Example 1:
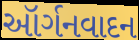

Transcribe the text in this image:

ઑર્ગનવાદન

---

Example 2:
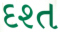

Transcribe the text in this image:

દશ્ત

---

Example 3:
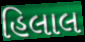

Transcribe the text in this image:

હિલાલ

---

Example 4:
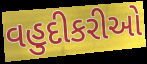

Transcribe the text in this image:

વહુદીકરીઓ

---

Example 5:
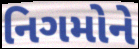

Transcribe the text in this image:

નિગમોને